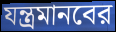
যন্ত্রমানবের